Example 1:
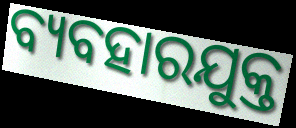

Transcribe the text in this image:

ବ୍ୟବହାରଯୁକ୍ତ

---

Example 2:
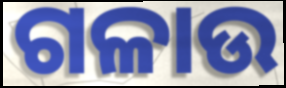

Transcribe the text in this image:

ଗଳାଉ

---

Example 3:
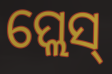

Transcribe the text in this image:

ପ୍ଲେସ୍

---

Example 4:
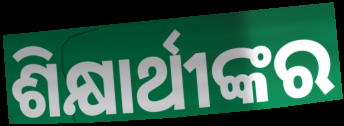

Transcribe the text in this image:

ଶିକ୍ଷାର୍ଥୀଙ୍କର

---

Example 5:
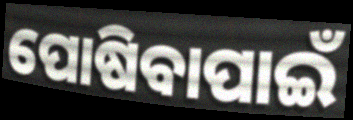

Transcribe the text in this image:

ପୋଷିବାପାଇଁ